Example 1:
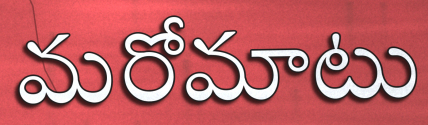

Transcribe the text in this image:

మరోమాటు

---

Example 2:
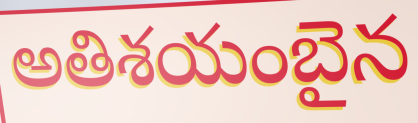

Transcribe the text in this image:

అతిశయంబైన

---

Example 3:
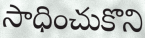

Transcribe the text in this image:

సాధించుకొని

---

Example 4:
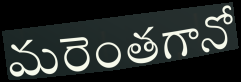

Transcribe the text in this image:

మరెంతగానో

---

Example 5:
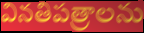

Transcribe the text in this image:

వినతిపత్రాలను